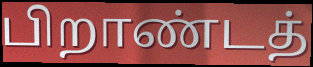
பிறாண்டத்